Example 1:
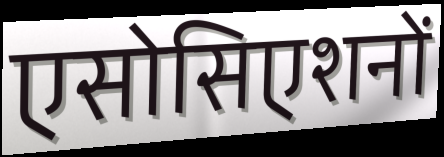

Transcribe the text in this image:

एसोसिएशनों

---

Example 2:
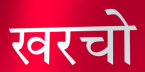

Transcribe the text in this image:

खरचो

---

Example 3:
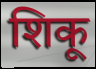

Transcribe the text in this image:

शिकू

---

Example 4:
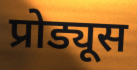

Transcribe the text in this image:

प्रोड्यूस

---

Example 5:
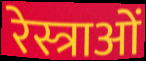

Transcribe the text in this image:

रेस्त्राओं